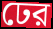
ঢের